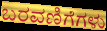
ಬರವಣಿಗೆಗಳು